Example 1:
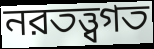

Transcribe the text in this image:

নরতত্ত্বগত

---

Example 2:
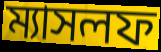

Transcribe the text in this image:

ম্যাসলফ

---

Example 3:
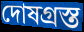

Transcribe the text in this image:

দোষগ্রস্ত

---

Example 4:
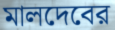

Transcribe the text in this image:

মালদেবের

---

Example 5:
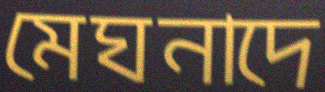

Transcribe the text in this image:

মেঘনাদে